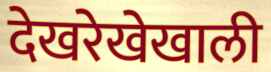
देखरेखेखाली